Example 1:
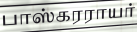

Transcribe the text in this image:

பாஸ்கரராயர்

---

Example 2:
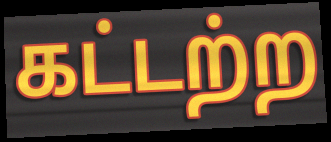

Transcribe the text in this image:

கட்டற்ற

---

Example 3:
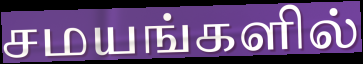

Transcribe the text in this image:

சமயங்களில்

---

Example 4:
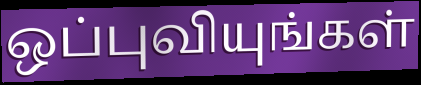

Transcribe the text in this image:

ஒப்புவியுங்கள்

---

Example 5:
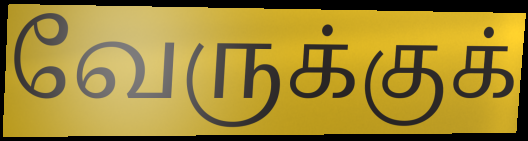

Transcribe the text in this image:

வேருக்குக்